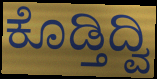
ಕೊಡ್ತಿದ್ವಿ